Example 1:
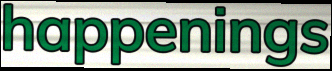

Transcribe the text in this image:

happenings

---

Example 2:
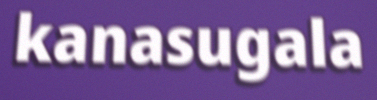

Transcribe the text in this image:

kanasugala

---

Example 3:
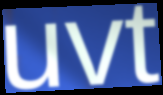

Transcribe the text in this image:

uvt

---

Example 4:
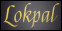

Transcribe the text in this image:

Lokpal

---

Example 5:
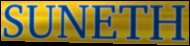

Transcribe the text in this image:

SUNETH